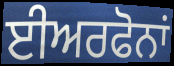
ਈਅਰਫੋਨਾਂ